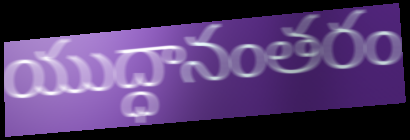
యుద్ధానంతరం